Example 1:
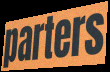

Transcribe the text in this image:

parters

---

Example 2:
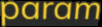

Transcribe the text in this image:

param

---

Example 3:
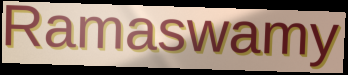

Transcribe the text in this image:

Ramaswamy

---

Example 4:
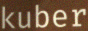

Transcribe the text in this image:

kuber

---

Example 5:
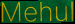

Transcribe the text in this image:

Mehul